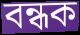
বন্ধক